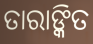
ତାରାଙ୍କିତ